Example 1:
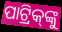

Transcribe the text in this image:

ପାଟ୍ରିକ୍‌ଙ୍କୁ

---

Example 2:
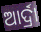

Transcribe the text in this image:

ଆର୍ଦ୍ରା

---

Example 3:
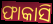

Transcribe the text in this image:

ଫାକାସି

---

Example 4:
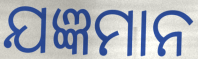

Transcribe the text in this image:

ଯଜ୍ଞମାନ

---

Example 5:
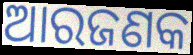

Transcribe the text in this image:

ଆରଜଣକ